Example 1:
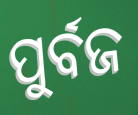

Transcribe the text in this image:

ପୁର୍ବଜ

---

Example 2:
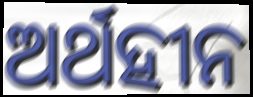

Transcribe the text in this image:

ଅର୍ଥହୀନ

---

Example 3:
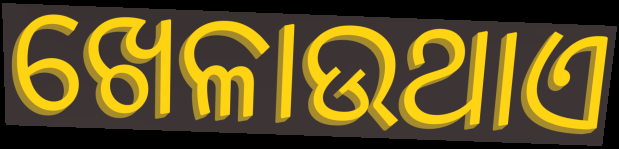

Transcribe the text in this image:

ଖେଳାଉଥାଏ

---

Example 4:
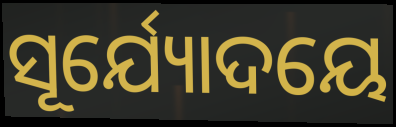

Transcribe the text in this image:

ସୂର୍ଯ୍ୟୋଦୟେ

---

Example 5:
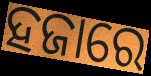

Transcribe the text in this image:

ହଜାରେ